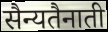
सैन्यतैनाती